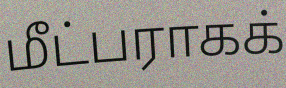
மீட்பராகக்